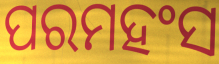
ପରମହଂସ